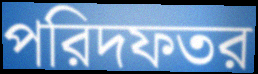
পরিদফতর